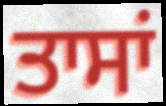
ਤਾਸਾਂ